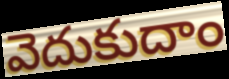
వెదుకుదాం